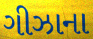
ગીઝાના